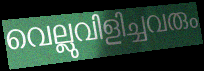
വെല്ലുവിളിച്ചവരും